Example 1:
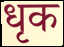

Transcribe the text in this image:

धृक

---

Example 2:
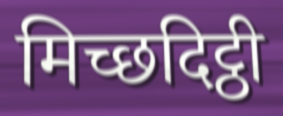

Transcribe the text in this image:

मिच्छदिट्ठी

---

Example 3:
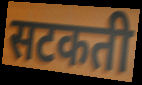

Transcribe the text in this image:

सटकती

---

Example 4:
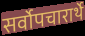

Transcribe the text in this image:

सर्वोपचारार्थे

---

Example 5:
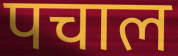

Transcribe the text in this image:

पचाल